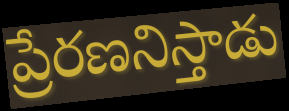
ప్రేరణనిస్తాడు